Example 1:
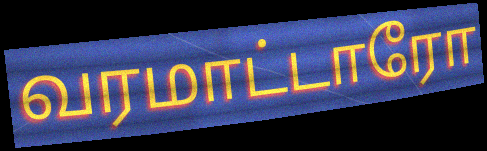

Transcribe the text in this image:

வரமாட்டாரோ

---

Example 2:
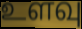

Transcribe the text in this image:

உளவு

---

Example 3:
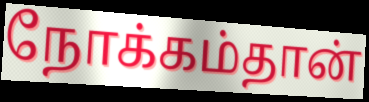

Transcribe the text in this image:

நோக்கம்தான்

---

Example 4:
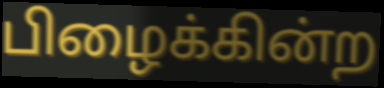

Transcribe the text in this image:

பிழைக்கின்ற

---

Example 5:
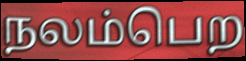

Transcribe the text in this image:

நலம்பெற